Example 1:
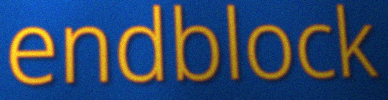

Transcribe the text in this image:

endblock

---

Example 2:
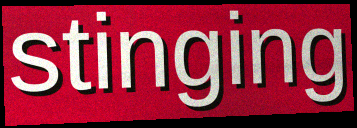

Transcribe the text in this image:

stinging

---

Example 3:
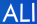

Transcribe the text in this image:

ALI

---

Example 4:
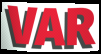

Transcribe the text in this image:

VAR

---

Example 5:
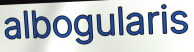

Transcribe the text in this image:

albogularis